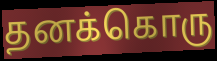
தனக்கொரு